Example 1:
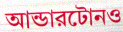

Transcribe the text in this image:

আন্ডারটোনও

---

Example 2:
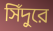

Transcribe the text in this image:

সিঁদুরে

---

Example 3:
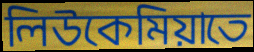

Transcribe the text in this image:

লিউকেমিয়াতে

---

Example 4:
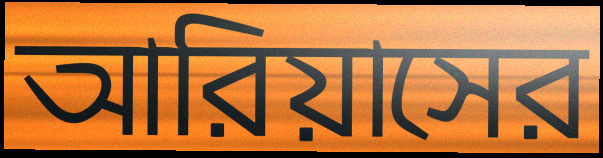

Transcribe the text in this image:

আরিয়াসের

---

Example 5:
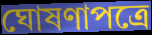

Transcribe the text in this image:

ঘোষণাপত্রে